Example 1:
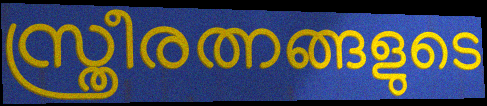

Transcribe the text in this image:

സ്ത്രീരത്നങ്ങളുടെ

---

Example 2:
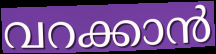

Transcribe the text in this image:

വറക്കാൻ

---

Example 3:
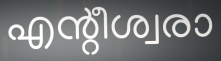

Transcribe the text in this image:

എന്റീശ്വരാ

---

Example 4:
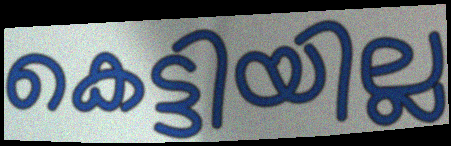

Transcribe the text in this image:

കെട്ടിയില്ല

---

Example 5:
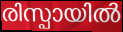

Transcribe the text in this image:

രിസ്പായിൽ